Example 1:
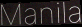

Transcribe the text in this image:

Manila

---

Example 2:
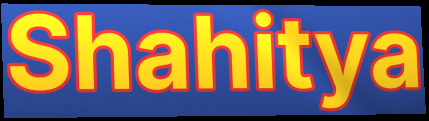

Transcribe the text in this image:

Shahitya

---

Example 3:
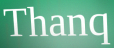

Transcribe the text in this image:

Thanq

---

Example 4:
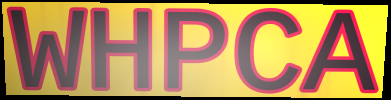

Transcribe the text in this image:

WHPCA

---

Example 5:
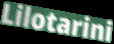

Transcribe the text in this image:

Lilotarini